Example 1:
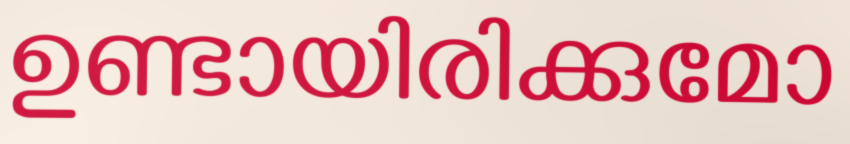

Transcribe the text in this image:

ഉണ്ടായിരിക്കുമോ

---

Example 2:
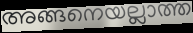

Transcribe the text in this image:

അങ്ങനെയല്ലാത്ത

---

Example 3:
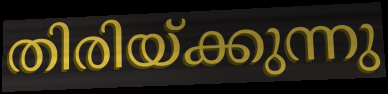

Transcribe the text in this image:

തിരിയ്ക്കുന്നു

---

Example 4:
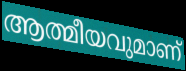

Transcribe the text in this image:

ആത്മീയവുമാണ്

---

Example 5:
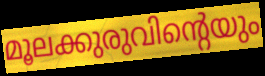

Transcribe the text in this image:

മൂലക്കുരുവിന്റെയും